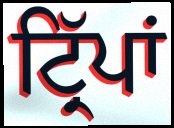
ਟ੍ਰਿੱਪਾਂ